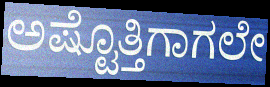
ಅಷ್ಟೊತ್ತಿಗಾಗಲೇ